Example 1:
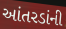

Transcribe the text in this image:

આંતરડાંની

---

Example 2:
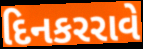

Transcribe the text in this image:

દિનકરરાવે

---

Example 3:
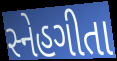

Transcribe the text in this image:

સ્નેહગીતા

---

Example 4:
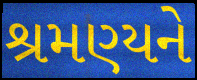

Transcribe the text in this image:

શ્રમણ્યને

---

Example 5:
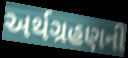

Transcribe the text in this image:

અર્થગ્રહણની